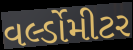
વર્લ્ડોમીટર